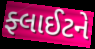
ફ્લાઈટને